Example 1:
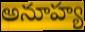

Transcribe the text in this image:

అనూహ్య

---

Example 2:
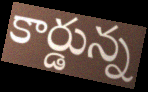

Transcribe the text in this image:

కార్డున్న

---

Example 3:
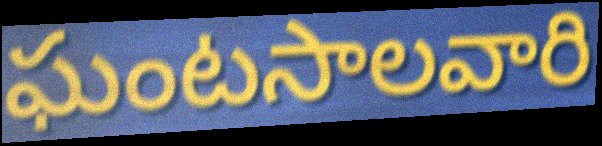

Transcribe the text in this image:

ఘంటసాలవారి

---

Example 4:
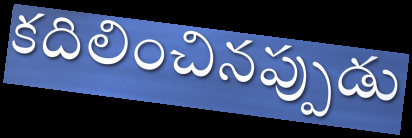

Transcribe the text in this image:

కదిలించినప్పుడు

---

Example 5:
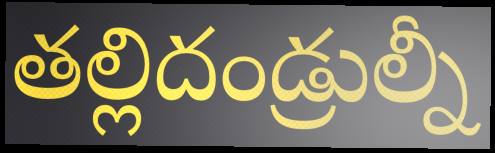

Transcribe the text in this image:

తల్లిదండ్రుల్నీ